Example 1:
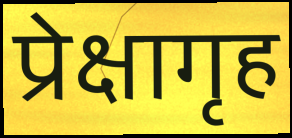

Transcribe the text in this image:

प्रेक्षागृह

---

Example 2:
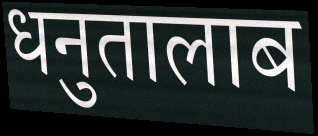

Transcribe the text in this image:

धनुतालाब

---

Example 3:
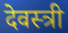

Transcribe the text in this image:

देवस्त्री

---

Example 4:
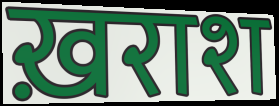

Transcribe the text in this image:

ख़राश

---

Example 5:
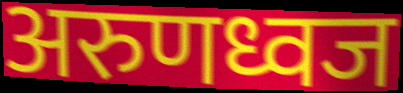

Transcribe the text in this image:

अरुणध्वज